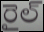
రైల్